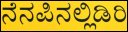
ನೆನಪಿನಲ್ಲಿಡಿರಿ